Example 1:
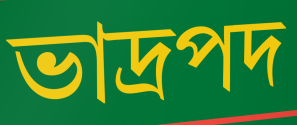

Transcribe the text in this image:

ভাদ্রপদ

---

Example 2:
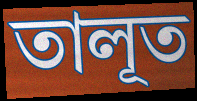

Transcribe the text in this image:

তালূত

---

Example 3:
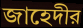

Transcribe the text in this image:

জাহেদীর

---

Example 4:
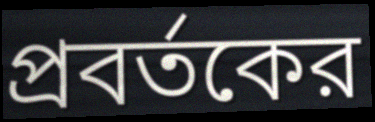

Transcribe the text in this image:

প্রবর্তকের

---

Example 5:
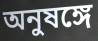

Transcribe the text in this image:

অনুষঙ্গে